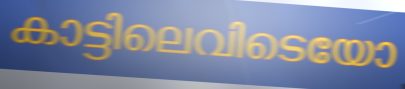
കാട്ടിലെവിടെയോ